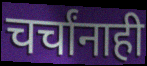
चर्चांनाही